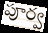
పూర్వ